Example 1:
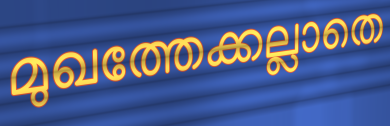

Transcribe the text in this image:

മുഖത്തേക്കല്ലാതെ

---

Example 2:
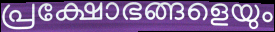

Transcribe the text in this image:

പ്രക്ഷോഭങ്ങളെയും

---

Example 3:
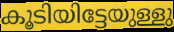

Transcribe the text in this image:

കൂടിയിട്ടേയുള്ളു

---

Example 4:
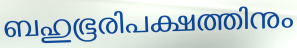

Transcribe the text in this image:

ബഹുഭൂരിപക്ഷത്തിനും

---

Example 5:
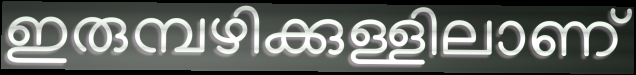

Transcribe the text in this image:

ഇരുമ്പഴിക്കുള്ളിലാണ്